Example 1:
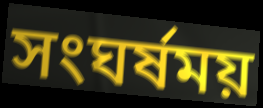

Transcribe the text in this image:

সংঘর্ষময়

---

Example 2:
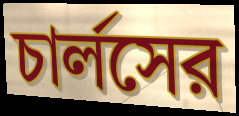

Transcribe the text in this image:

চার্লসের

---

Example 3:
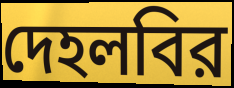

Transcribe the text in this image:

দেহলবির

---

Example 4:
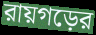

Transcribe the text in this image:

রায়গড়ের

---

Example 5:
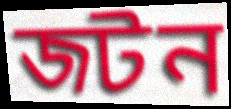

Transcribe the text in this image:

জটন